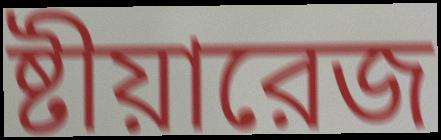
ষ্টীয়ারেজ